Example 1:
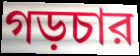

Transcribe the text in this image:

গড়চার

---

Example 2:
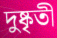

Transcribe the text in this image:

দুষ্কৃতী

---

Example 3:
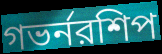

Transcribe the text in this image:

গভর্নরশিপ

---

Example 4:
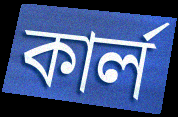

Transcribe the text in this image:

কার্ল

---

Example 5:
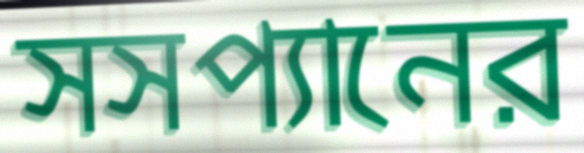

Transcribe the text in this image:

সসপ্যানের